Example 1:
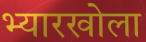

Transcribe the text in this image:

भ्यारखोला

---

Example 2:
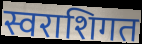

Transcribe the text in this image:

स्वराशिगत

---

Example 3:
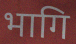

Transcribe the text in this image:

भागि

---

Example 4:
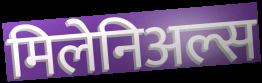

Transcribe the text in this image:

मिलेनिअल्स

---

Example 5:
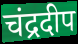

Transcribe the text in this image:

चंद्रदीप